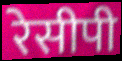
रेसीपी